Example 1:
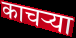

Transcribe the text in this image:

काचऱ्या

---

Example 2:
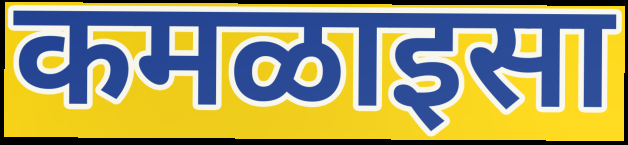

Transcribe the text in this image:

कमळाइसा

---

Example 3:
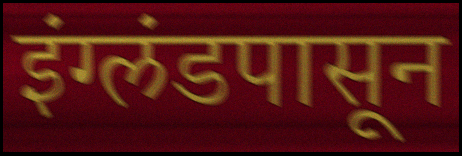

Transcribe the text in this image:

इंग्लंडपासून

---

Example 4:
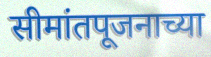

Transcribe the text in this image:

सीमांतपूजनाच्या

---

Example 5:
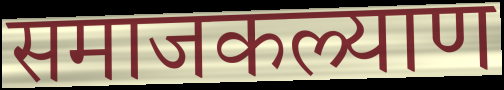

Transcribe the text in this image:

समाजकल्याण